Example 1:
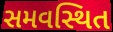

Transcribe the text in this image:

સમવસ્થિત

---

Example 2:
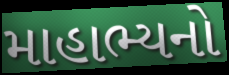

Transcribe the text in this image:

માહાભ્યનો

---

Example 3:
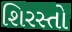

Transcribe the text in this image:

શિરસ્તો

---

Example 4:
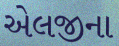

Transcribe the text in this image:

એલજીના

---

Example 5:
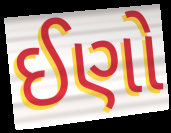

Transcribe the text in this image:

ઈણો